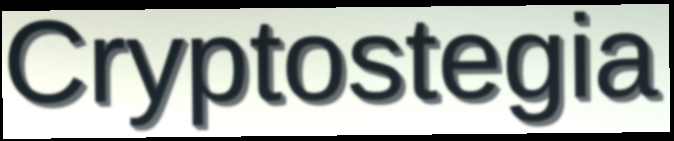
Cryptostegia